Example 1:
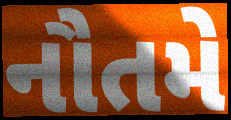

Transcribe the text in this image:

નૌતમે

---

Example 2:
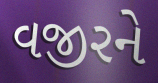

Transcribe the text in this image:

વજીરને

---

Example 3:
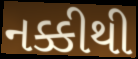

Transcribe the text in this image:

નક્કીથી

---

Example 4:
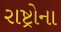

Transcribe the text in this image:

રાષ્ટ્રોના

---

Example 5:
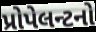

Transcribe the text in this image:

પ્રોપેલન્ટનો